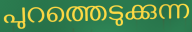
പുറത്തെടുക്കുന്ന